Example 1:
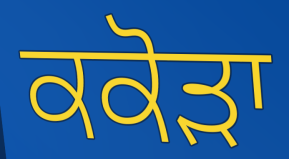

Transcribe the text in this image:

ਕਕੋੜਾ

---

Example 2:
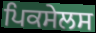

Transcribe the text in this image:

ਪਿਕਸੇਲਸ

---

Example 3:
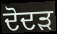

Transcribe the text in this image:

ਦੋਦੜ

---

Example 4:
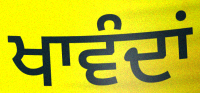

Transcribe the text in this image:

ਖਾਵੰਦਾਂ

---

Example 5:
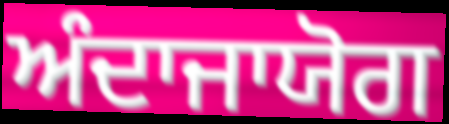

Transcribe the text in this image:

ਅੰਦਾਜਾਯੋਗ